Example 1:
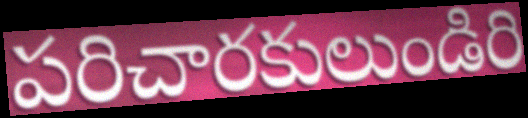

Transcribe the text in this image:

పరిచారకులుండిరి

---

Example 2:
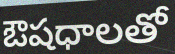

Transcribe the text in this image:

ఔషధాలతో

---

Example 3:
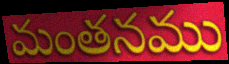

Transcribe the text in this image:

మంతనము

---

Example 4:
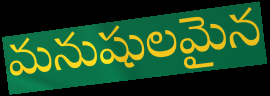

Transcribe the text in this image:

మనుషులమైన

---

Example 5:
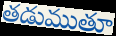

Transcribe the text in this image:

తడుముతూ